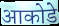
आकोडे